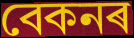
বেকনৰ